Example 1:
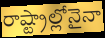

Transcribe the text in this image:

రాష్ట్రాల్లోనైనా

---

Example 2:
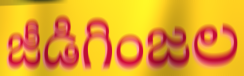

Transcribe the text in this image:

జీడిగింజల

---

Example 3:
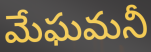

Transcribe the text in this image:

మేఘమనీ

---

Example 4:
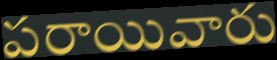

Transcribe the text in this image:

పరాయివారు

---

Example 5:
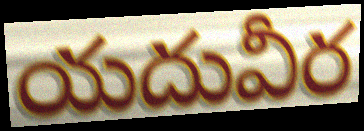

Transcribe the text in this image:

యదువీర